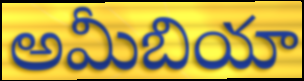
అమీబియా